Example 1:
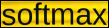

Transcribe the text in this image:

softmax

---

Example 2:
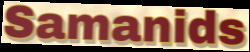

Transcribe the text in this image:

Samanids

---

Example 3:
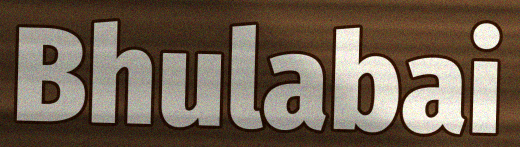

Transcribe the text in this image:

Bhulabai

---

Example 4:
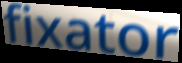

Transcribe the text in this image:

fixator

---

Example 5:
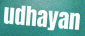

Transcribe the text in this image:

udhayan